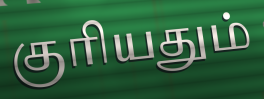
குரியதும்